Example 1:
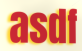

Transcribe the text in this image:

asdf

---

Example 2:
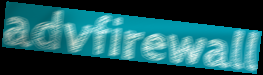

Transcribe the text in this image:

advfirewall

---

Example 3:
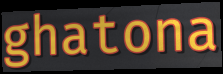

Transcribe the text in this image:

ghatona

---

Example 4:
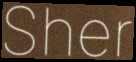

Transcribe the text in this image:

Sher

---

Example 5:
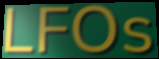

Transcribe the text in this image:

LFOs